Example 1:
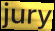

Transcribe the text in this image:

jury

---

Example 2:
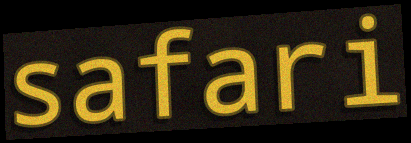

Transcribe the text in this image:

safari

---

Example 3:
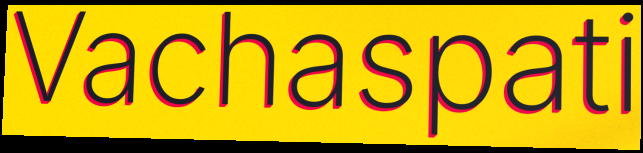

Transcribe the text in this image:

Vachaspati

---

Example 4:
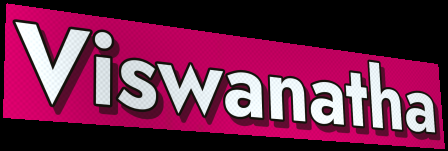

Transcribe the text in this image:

Viswanatha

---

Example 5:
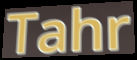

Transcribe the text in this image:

Tahr